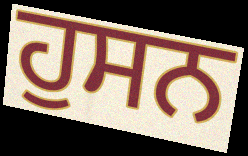
ਹੁਸਨ